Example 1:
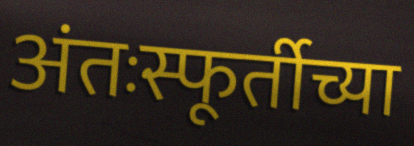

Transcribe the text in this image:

अंतःस्फूर्तीच्या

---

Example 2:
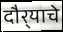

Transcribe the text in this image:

दौर्‍याचे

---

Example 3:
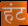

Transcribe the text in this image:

हंट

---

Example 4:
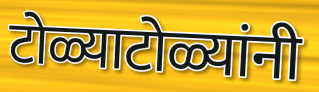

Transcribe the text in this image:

टोळ्याटोळ्यांनी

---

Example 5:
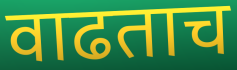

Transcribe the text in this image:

वाढताच